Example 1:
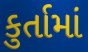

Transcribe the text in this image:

કુર્તામાં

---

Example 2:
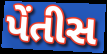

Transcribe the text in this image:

પેંતીસ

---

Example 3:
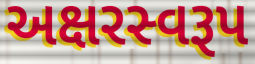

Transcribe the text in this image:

અક્ષરસ્વરૂપ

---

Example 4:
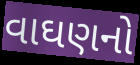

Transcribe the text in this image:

વાઘણનો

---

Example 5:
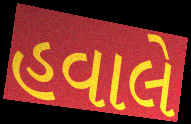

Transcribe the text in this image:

હવાલે